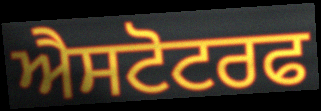
ਐਸਟੋਟਰਫ